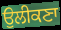
ਉਲੀਕਣਾ